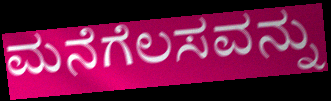
ಮನೆಗೆಲಸವನ್ನು